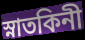
স্নাতকিনী